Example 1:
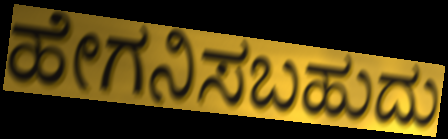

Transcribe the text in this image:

ಹೇಗನಿಸಬಹುದು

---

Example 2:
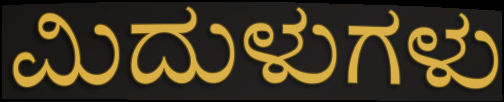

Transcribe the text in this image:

ಮಿದುಳುಗಳು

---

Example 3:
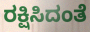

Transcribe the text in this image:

ರಕ್ಷಿಸಿದಂತೆ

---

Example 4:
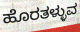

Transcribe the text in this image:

ಹೊರತಳ್ಳುವ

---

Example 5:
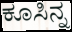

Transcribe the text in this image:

ಕೂಸಿನ್ನ